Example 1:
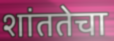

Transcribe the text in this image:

शांततेचा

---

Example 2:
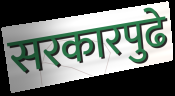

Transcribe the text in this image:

सरकारपुढे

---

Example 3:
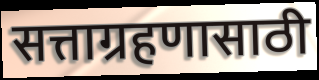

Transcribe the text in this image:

सत्ताग्रहणासाठी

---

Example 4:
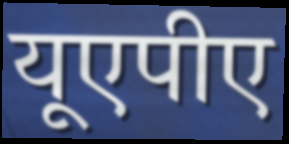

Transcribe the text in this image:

यूएपीए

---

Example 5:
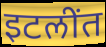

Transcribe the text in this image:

इटलींत